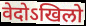
वेदोऽखिलो